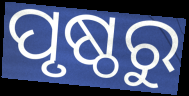
ପୃଷ୍ଠରୁ